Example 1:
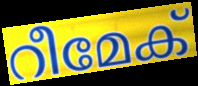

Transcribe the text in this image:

റീമേക്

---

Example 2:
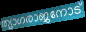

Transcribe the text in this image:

ത്യാഗരാജനോട്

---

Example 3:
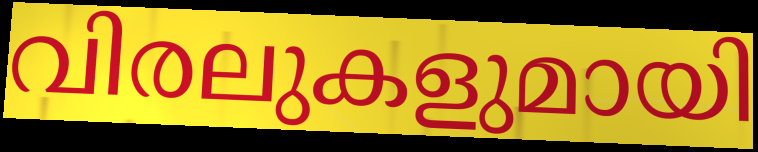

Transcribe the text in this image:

വിരലുകളുമായി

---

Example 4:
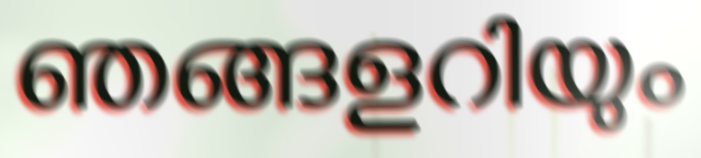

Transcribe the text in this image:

ഞങ്ങളറിയും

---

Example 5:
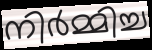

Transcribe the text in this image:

നിർമ്മിച്ച